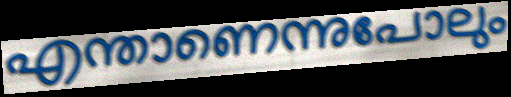
എന്താണെന്നുപോലും